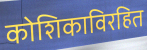
कोशिकाविरहित